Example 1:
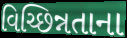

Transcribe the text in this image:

વિચ્છિન્નતાના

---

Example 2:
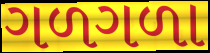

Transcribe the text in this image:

ગળગળા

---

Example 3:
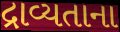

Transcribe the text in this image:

દ્રાવ્યતાના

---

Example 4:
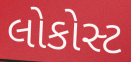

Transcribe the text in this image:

લોકોસ્ટ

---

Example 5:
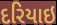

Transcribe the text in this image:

દરિયાઇ